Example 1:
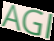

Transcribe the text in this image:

AGI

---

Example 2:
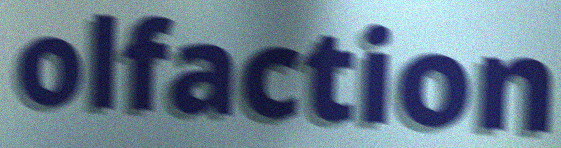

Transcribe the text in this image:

olfaction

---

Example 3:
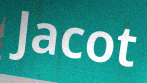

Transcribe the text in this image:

Jacot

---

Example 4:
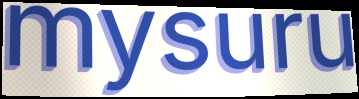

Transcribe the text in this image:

mysuru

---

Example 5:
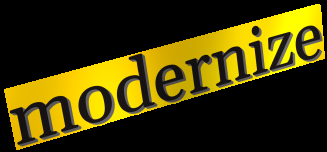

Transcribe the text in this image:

modernize